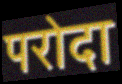
परोदा